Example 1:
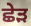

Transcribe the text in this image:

ਛੇੜ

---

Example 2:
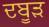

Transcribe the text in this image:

ਦਬੂੜ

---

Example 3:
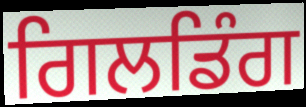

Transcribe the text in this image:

ਗਿਲਡਿੰਗ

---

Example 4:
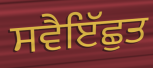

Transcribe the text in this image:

ਸਵੈਇੱਛੁਤ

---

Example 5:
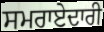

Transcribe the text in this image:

ਸਮਰਾਏਦਾਰੀ